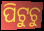
ପିଟୁଚୁ